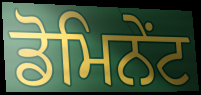
ਡੋਮਿਨੇਂਟ